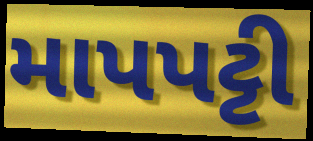
માપપટ્ટી